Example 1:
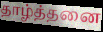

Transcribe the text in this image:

தாழ்த்தனை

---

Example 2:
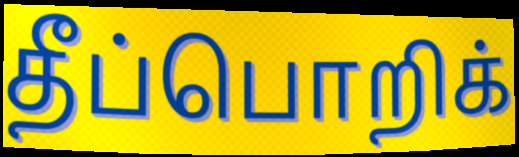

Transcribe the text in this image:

தீப்பொறிக்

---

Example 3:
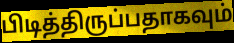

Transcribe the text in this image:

பிடித்திருப்பதாகவும்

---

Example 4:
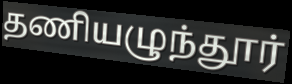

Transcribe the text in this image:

தணியழுந்தூர்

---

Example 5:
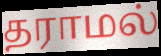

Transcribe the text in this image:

தராமல்